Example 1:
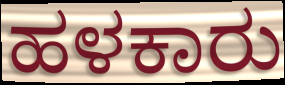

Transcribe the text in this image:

ಹಳಕಾರು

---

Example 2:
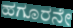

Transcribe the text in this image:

ಹಗೂರನೇ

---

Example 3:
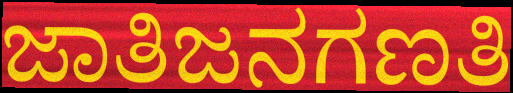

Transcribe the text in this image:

ಜಾತಿಜನಗಣತಿ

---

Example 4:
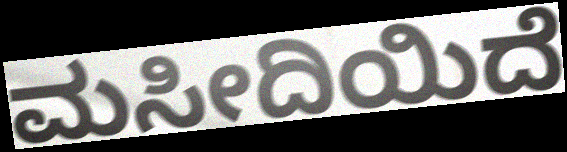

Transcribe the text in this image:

ಮಸೀದಿಯಿದೆ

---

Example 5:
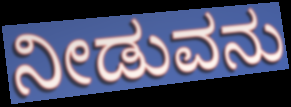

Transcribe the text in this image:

ನೀಡುವನು